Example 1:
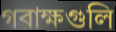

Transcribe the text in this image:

গবাক্ষগুলি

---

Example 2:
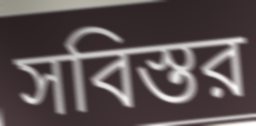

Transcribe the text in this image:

সবিস্তর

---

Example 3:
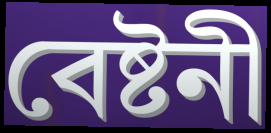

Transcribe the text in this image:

বেষ্টনী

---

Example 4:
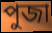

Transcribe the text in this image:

পুজা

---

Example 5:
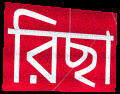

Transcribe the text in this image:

রিছা